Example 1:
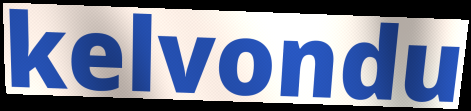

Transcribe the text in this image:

kelvondu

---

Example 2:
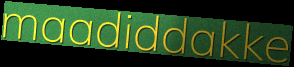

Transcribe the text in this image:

maadiddakke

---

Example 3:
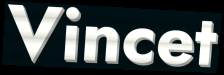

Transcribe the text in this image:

Vincet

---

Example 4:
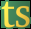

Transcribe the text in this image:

ts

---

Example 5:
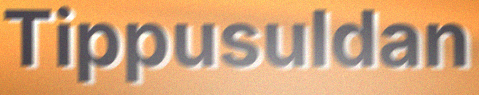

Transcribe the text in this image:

Tippusuldan